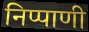
निप्पाणी